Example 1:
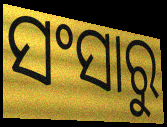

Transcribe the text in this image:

ସଂସାରୁ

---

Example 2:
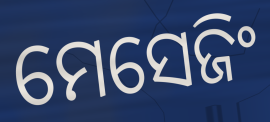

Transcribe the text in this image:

ମେସେଜିଂ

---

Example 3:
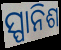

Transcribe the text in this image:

ସ୍ପାନିଶ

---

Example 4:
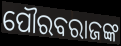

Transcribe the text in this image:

ପୌରବରାଜଙ୍କ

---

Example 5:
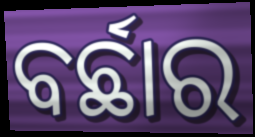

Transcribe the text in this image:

ବର୍ଛାର